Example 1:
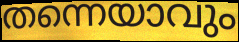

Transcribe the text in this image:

തന്നെയാവും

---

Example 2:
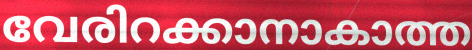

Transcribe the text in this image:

വേരിറക്കാനാകാത്ത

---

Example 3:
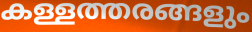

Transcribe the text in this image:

കള്ളത്തരങ്ങളും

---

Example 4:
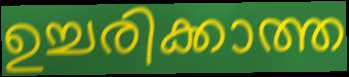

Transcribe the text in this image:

ഉച്ചരിക്കാത്ത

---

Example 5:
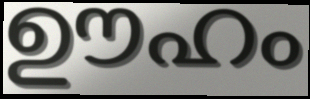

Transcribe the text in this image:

ഊഹം